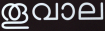
തൂവാല